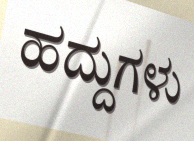
ಹದ್ದುಗಳು